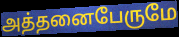
அத்தனைபேருமே